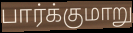
பார்க்குமாறு